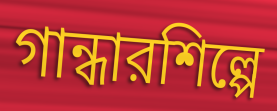
গান্ধারশিল্পে